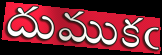
దుముకఁ